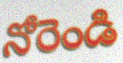
నోరెండి